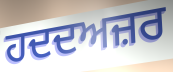
ਹਦਦਅਜ਼ਰ